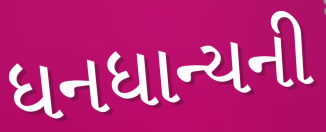
ધનધાન્યની